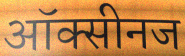
ऑक्सीनज